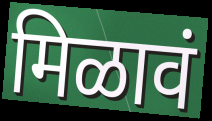
मिळावं